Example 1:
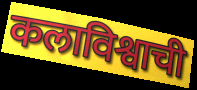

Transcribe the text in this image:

कलाविश्वाची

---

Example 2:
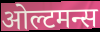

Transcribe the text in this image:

ओल्टमन्स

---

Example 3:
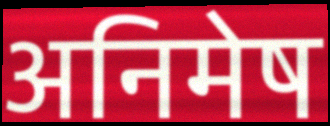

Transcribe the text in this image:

अनिमेष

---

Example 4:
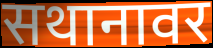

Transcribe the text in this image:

सथानावर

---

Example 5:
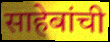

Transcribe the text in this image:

साहेबांची